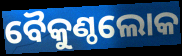
ବୈକୁଣ୍ଠଲୋକ